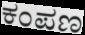
ಕಂಪಣ